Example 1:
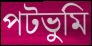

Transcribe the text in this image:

পটভুমি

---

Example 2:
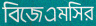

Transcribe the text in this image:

বিজেএমসির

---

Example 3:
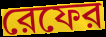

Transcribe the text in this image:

রেফের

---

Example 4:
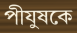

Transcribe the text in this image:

পীযুষকে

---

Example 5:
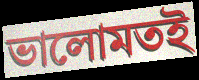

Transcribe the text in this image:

ভালোমতই